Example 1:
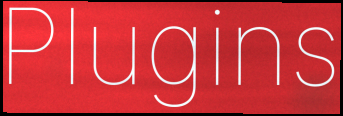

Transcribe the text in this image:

Plugins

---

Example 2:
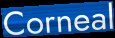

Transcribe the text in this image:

Corneal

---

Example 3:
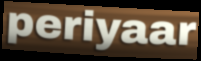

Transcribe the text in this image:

periyaar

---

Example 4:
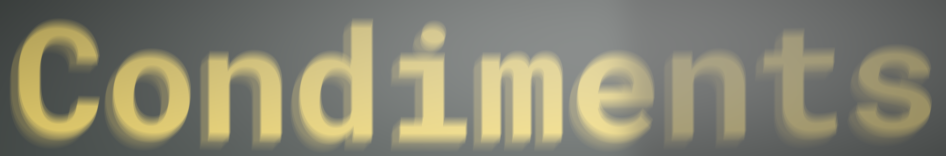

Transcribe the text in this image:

Condiments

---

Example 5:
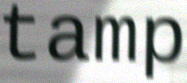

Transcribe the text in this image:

tamp